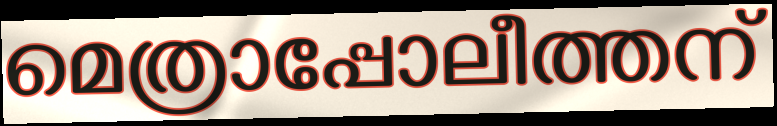
മെത്രാപ്പോലീത്തന്